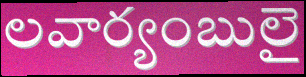
లవార్యంబులై